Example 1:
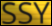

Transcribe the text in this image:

SSY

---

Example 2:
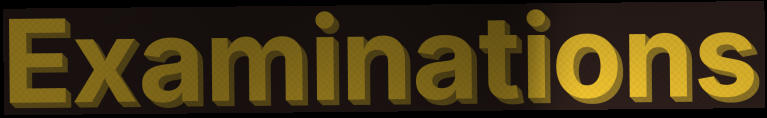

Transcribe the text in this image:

Examinations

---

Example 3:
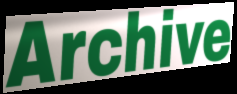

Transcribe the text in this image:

Archive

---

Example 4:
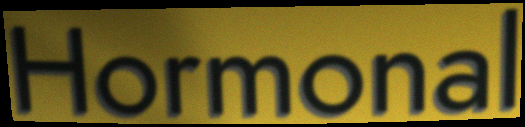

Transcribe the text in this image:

Hormonal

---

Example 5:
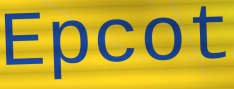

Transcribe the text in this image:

Epcot